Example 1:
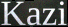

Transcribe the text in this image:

Kazi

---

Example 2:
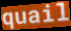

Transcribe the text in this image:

quail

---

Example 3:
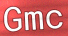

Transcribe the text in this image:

Gmc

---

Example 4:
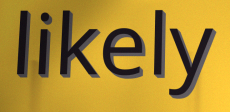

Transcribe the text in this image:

likely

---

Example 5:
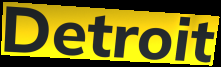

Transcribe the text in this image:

Detroit